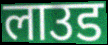
लाउड